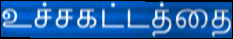
உச்சகட்டத்தை